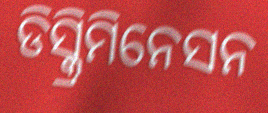
ଡିସ୍କ୍ରିମିନେସନ